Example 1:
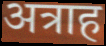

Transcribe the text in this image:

अत्राह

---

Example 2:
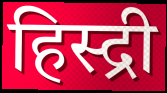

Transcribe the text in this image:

हिस्द्री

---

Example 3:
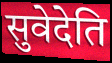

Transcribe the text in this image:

सुवेदेति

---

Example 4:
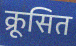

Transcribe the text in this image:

क्रूसित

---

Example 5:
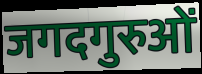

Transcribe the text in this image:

जगदगुरुओं